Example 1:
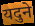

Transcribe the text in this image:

यदुने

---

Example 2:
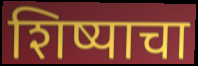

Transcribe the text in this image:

शिष्याचा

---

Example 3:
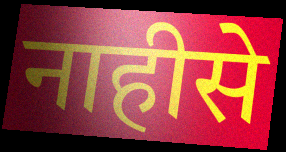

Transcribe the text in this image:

नाहीसे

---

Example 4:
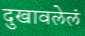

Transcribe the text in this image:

दुखावलेलं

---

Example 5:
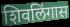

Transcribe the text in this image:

शिवलिंगास